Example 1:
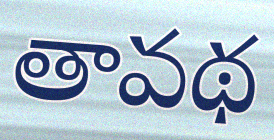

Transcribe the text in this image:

తావథ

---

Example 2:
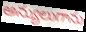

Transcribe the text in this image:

అన్యులుగాను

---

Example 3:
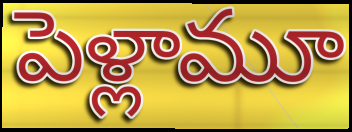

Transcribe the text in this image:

పెళ్లామూ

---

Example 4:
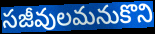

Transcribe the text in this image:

సజీవులమనుకొని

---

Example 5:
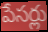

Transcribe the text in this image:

పేసర్లు